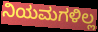
ನಿಯಮಗಳಿಲ್ಲ